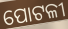
ପୋଟଳୀ